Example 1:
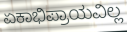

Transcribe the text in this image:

ಏಕಾಭಿಪ್ರಾಯವಿಲ್ಲ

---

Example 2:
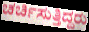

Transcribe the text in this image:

ಚರ್ಚಿಸುತ್ತಿದ್ದರು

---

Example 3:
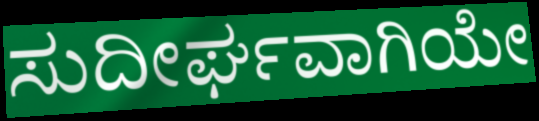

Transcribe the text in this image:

ಸುದೀರ್ಘವಾಗಿಯೇ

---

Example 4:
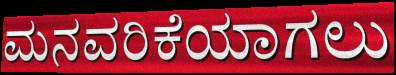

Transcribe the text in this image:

ಮನವರಿಕೆಯಾಗಲು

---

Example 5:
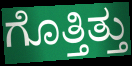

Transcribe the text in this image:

ಗೊತ್ತಿತ್ತು